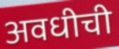
अवधीची